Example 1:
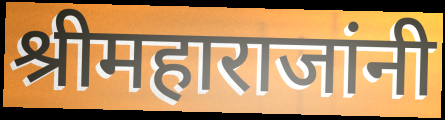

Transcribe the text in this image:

श्रीमहाराजांनी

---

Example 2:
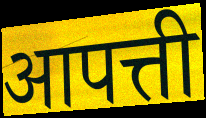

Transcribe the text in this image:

आपत्ती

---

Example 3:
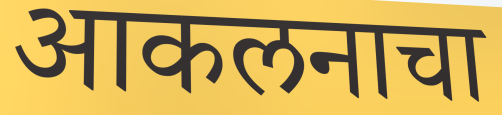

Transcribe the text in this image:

आकलनाचा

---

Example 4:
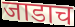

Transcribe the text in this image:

जाडाच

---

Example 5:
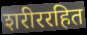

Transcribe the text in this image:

शरीररहित